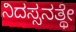
ನಿದಸ್ಸನತ್ಥೇ